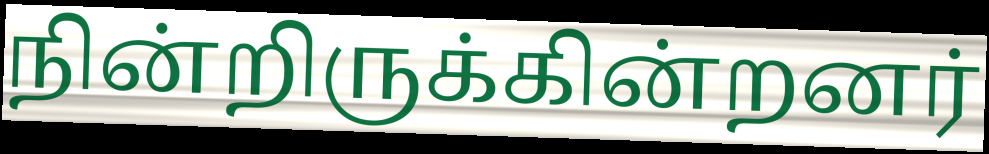
நின்றிருக்கின்றனர்